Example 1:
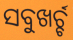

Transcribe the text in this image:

ସବୁଖର୍ଚ୍ଚ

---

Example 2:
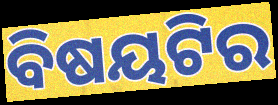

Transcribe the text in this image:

ବିଷୟଟିର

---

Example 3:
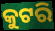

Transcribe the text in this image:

କୁଟରି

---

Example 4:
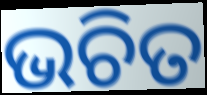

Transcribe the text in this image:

ଭଚିତ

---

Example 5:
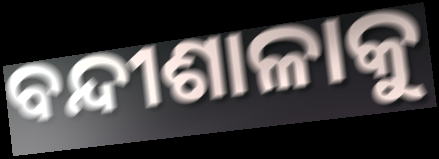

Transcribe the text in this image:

ବନ୍ଦୀଶାଳାକୁ